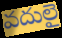
వదులై